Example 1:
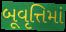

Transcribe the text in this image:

બૂવૃત્તિમાં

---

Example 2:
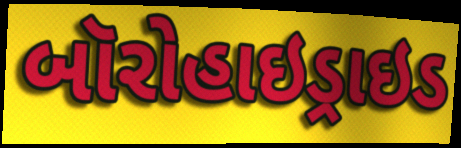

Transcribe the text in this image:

બૉરોહાઇડ્રાઇડ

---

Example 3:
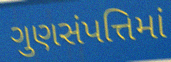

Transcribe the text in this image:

ગુણસંપત્તિમાં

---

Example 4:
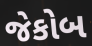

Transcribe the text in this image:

જેકોબ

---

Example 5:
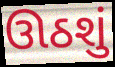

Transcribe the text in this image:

ઊઠશું